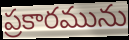
ప్రకారమును